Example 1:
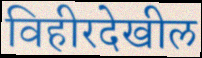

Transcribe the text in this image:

विहीरदेखील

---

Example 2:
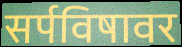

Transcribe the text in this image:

सर्पविषावर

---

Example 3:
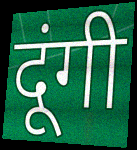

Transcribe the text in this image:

दूंगी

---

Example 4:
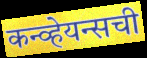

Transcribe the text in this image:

कन्व्हेयन्सची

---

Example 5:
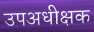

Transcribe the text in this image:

उपअधीक्षक